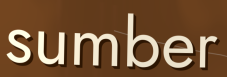
sumber